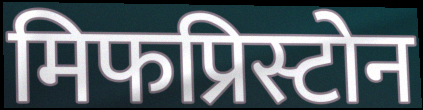
मिफप्रिस्टोन